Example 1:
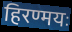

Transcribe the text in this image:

हिरण्मयः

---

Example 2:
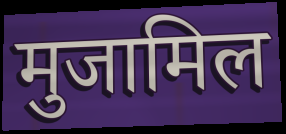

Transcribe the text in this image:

मुजामिल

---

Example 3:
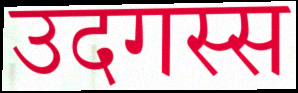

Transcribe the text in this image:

उदगस्स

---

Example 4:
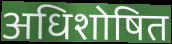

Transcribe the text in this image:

अधिशोषित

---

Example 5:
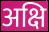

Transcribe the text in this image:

अक्षि